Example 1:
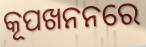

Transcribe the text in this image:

କୂପଖନନରେ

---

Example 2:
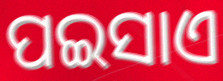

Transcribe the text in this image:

ପଇସାଏ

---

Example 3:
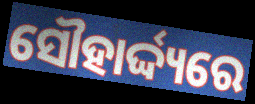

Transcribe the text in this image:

ସୌହାର୍ଦ୍ଦ୍ୟରେ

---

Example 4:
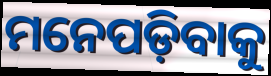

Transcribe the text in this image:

ମନେପଡ଼ିବାକୁ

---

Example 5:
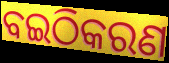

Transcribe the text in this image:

ବଇଠିକରଣ